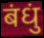
बंधुं